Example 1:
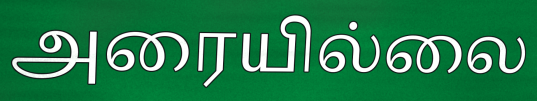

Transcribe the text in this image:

அரையில்லை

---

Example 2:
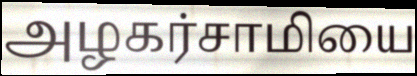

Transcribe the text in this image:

அழகர்சாமியை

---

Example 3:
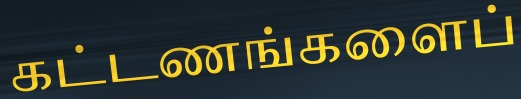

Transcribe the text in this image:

கட்டணங்களைப்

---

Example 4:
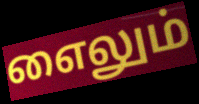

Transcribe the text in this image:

எைலும்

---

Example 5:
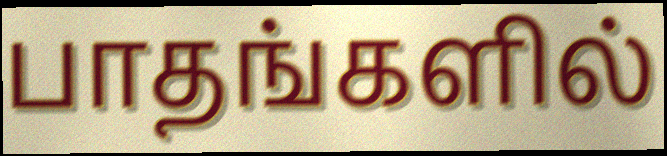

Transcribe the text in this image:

பாதங்களில்